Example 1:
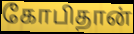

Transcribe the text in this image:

கோபிதான்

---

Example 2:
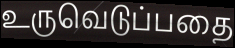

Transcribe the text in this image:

உருவெடுப்பதை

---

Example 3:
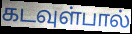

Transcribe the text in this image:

கடவுள்பால்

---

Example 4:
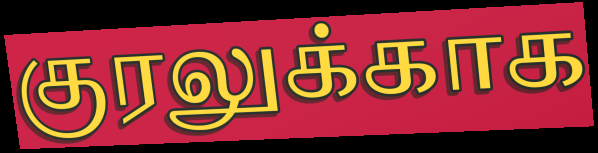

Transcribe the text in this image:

குரலுக்காக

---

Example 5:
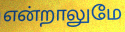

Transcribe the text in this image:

என்றாலுமே